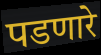
पडणारे